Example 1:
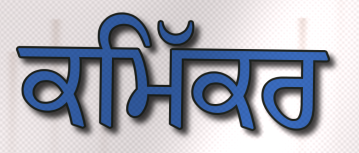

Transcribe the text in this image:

ਕਮਿੱਕਰ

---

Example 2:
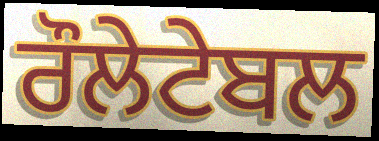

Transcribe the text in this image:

ਰੌਲੇਟੇਬਲ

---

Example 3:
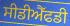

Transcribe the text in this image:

ਸੀਡੀਐੱਫਡੀ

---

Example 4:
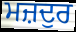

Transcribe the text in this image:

ਮਜ਼ਦੁਰ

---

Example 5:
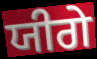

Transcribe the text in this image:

ਯੀਗੇ